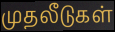
முதலீடுகள்